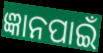
ଜ୍ଞାନପାଇଁ